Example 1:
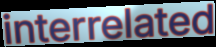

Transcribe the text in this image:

interrelated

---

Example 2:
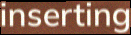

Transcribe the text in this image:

inserting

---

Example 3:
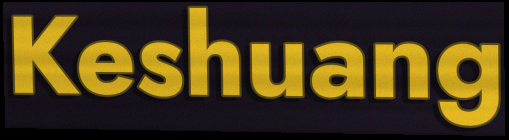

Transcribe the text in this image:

Keshuang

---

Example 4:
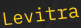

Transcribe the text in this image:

Levitra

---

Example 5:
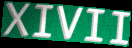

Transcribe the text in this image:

XIVII